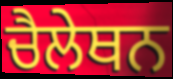
ਚੈਲੇਥਨ